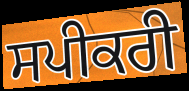
ਸਪੀਕਰੀ